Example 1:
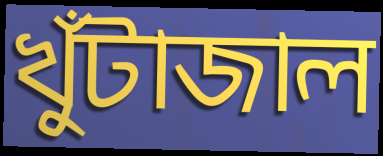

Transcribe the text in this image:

খুঁটাজাল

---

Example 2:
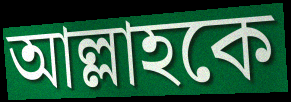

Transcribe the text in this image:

আল্লাহকে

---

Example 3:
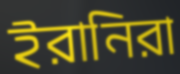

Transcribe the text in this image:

ইরানিরা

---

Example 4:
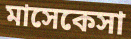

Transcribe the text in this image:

মাসেকেসা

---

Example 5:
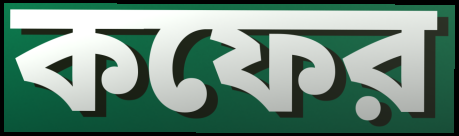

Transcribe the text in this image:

কফের